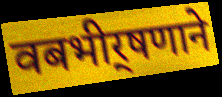
वबभीर्षणाने